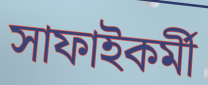
সাফাইকর্মী